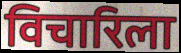
विचारिला